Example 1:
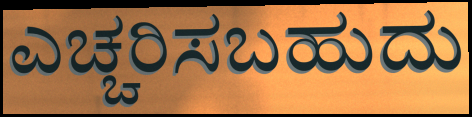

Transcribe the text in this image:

ಎಚ್ಚರಿಸಬಹುದು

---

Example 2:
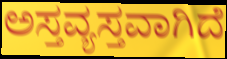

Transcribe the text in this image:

ಅಸ್ತವ್ಯಸ್ತವಾಗಿದೆ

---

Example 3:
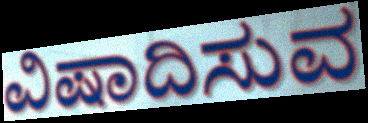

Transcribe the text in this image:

ವಿಷಾದಿಸುವ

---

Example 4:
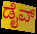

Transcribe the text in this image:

ಡೈವ್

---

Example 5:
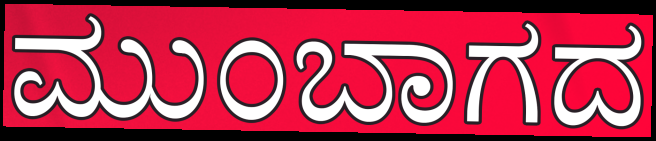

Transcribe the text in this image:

ಮುಂಬಾಗದ